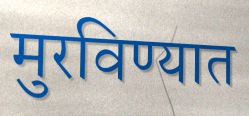
मुरविण्यात